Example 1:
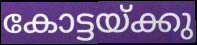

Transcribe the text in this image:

കോട്ടയ്ക്കു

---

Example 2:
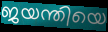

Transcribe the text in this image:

ജയന്തിയെ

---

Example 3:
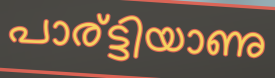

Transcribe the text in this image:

പാര്ട്ടിയാണു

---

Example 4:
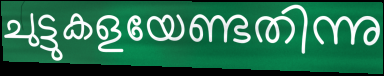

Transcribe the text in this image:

ചുട്ടുകളയേണ്ടതിന്നു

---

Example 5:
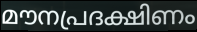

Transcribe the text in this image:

മൗനപ്രദക്ഷിണം